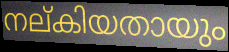
നല്കിയതായും